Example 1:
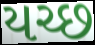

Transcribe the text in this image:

યચ્છ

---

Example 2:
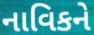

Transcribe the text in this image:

નાવિકને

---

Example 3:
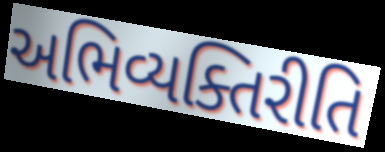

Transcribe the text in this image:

અભિવ્યક્તિરીતિ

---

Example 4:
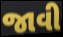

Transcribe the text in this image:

જાવી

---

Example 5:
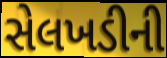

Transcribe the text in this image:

સેલખડીની